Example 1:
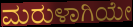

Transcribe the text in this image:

ಮರುಳಾಗಿಯೇ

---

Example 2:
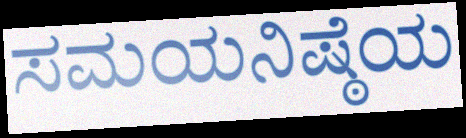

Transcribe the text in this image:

ಸಮಯನಿಷ್ಠೆಯ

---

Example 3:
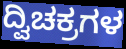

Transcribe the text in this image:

ದ್ವಿಚಕ್ರಗಳ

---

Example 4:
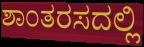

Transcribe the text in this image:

ಶಾಂತರಸದಲ್ಲಿ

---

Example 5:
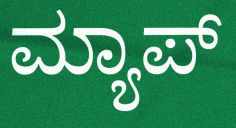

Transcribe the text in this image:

ಮ್ಯಾಪ್